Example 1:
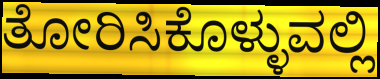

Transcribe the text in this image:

ತೋರಿಸಿಕೊಳ್ಳುವಲ್ಲಿ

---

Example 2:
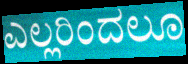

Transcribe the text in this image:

ಎಲ್ಲರಿಂದಲೂ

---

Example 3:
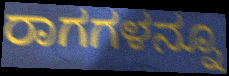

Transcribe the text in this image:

ರಾಗಗಳನ್ನೂ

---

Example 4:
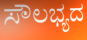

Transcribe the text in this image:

ಸೌಲಭ್ಯದ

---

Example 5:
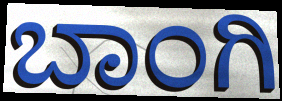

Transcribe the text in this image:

ಬಾಂಗಿ